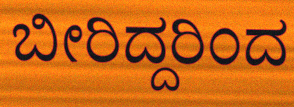
ಬೀರಿದ್ದರಿಂದ